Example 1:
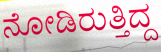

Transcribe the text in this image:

ನೋಡಿರುತ್ತಿದ್ದ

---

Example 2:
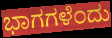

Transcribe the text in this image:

ಭಾಗಗಳೆಂದು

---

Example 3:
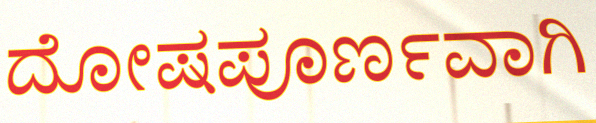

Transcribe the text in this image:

ದೋಷಪೂರ್ಣವಾಗಿ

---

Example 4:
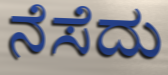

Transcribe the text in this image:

ನೆಸೆದು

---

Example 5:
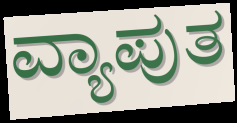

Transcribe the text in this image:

ವ್ಯಾಪುತ